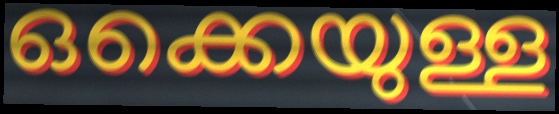
ഒക്കെയുള്ള